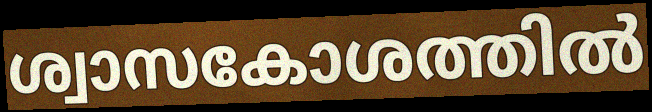
ശ്വാസകോശത്തിൽ